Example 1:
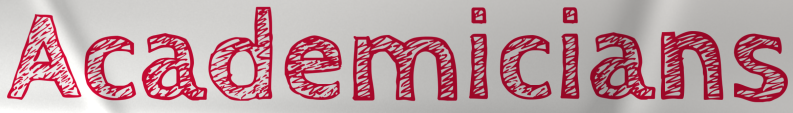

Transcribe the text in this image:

Academicians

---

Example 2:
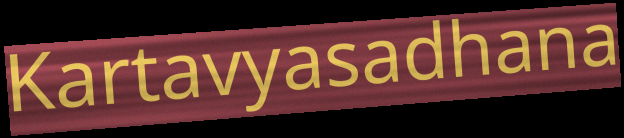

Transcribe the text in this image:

Kartavyasadhana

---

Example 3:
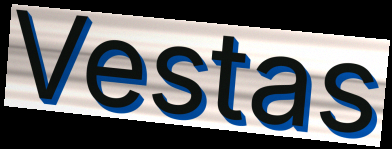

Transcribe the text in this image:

Vestas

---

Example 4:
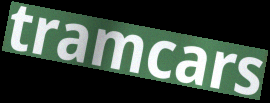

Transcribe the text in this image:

tramcars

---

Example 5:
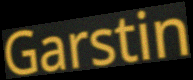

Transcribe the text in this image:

Garstin